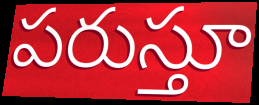
పరుస్తూ